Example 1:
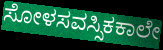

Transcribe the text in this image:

ಸೋಳಸವಸ್ಸಿಕಕಾಲೇ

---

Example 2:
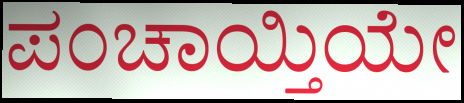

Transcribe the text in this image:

ಪಂಚಾಯ್ತಿಯೇ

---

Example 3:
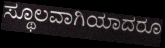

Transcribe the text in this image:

ಸ್ಥೂಲವಾಗಿಯಾದರೂ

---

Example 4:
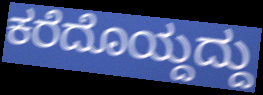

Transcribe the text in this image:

ಕರೆದೊಯ್ದದ್ದು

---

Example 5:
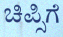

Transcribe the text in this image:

ಚಿಪ್ಸಿಗೆ